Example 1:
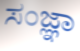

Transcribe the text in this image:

ಸಂಜ್ಞಾ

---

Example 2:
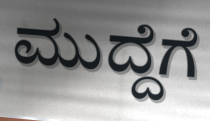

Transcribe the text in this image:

ಮುದ್ದೆಗೆ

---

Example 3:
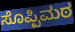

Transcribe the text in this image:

ಸೊಪ್ಪಿಮಠ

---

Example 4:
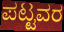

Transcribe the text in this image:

ಪಟ್ಟವರ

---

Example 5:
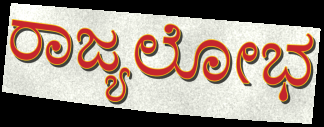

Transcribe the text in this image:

ರಾಜ್ಯಲೋಭ